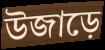
উজাড়ে